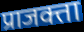
प्राजक्ता